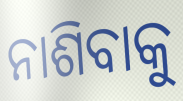
ନାଶିବାକୁ